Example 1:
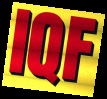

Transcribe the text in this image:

IQF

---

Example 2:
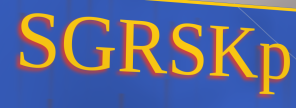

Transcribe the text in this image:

SGRSKp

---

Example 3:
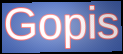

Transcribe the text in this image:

Gopis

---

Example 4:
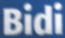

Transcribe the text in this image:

Bidi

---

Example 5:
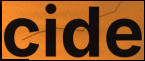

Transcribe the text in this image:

cide